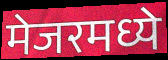
मेजरमध्ये